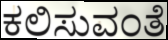
ಕಲಿಸುವಂತೆ